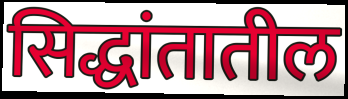
सिद्धांतातील